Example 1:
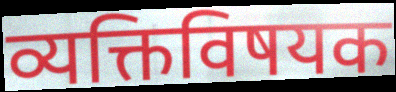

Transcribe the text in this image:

व्यक्तिविषयक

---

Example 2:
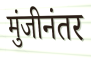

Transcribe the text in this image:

मुंजीनंतर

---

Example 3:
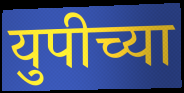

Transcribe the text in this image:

युपीच्या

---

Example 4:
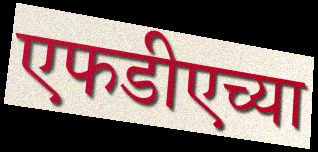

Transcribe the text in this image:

एफडीएच्या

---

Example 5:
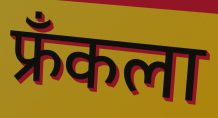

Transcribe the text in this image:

फ्रॅंकला